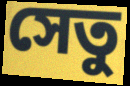
সেতু